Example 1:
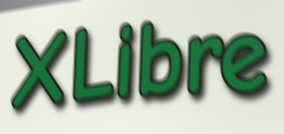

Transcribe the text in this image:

XLibre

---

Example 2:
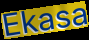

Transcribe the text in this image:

Ekasa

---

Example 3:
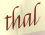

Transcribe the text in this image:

thal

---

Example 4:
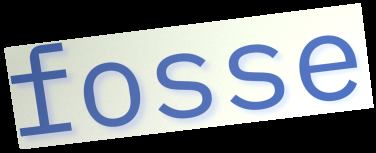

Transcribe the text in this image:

fosse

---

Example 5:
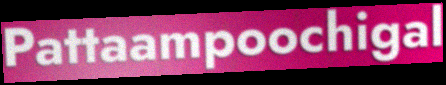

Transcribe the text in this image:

Pattaampoochigal